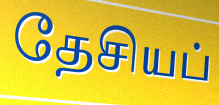
தேசியப்